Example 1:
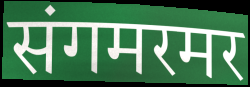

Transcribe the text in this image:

संगमरमर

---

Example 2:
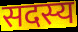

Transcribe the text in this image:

सदस्‍य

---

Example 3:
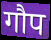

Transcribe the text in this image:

गौप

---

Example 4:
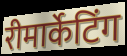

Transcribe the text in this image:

रीमार्केटिंग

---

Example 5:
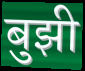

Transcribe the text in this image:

बुझी